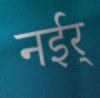
नईर्